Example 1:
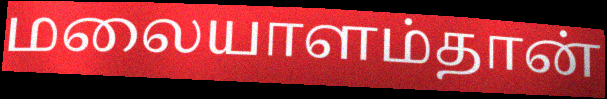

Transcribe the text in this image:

மலையாளம்தான்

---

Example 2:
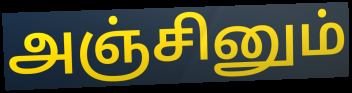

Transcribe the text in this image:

அஞ்சினும்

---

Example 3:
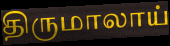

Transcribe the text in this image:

திருமாலாய்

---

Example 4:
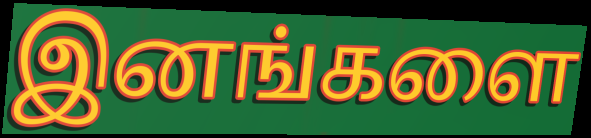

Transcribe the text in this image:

இனங்களை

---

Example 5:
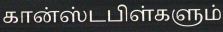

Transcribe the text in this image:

கான்ஸ்டபிள்களும்